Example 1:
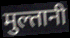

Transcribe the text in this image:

मुल्‍तानी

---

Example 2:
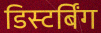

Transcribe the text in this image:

डिस्टर्बिंग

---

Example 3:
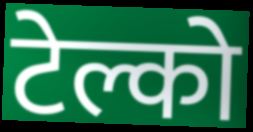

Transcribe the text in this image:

टेल्को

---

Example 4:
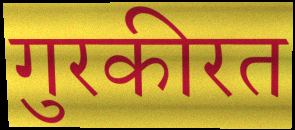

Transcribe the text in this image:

गुरकीरत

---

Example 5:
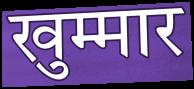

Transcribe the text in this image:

खुम्मार